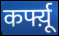
कर्फ्य़ू